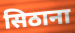
सिठाना